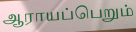
ஆராயப்பெறும்